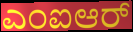
ಎಂಐಆರ್